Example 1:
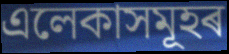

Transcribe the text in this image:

এলেকাসমূহৰ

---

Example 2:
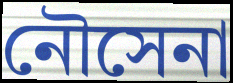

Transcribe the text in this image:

নৌসেনা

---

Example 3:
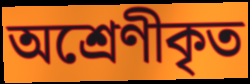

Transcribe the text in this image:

অশ্ৰেণীকৃত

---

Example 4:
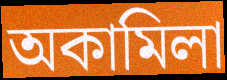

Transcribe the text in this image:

অকামিলা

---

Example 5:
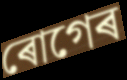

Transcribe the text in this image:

ৰোগেৰ